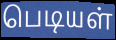
பெடியள்